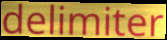
delimiter